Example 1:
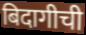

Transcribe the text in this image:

बिदागीची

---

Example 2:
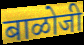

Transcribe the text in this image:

बाळोजी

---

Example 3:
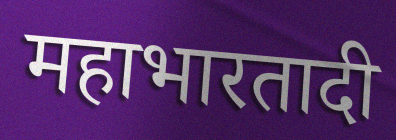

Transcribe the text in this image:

महाभारतादी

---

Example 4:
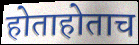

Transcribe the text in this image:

होताहोताच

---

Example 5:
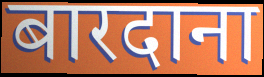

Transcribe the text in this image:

बारदाना